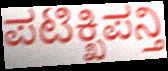
ಪಟಿಕ್ಖಿಪನ್ತಿ